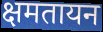
क्षमतायन